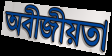
অবীজীয়তা